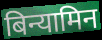
बिन्यामिन